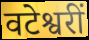
वटेश्वरीं